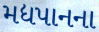
મદ્યપાનના